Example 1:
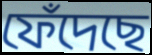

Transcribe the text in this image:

ফেঁদেছে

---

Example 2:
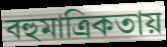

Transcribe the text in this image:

বহুমাত্রিকতায়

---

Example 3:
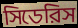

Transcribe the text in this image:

সিডেরিস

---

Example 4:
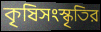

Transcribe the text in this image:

কৃষিসংস্কৃতির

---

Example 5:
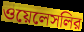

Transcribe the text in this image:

ওয়েলেসলির